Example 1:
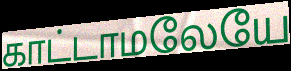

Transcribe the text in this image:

காட்டாமலேயே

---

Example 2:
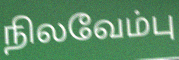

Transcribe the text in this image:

நிலவேம்பு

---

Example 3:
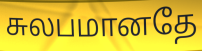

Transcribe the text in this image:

சுலபமானதே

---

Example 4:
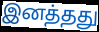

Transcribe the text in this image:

இனத்தது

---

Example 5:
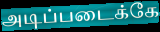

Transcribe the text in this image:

அடிப்படைக்கே